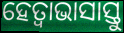
ହେତ୍ଵାଭାସାସ୍ତୁ